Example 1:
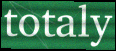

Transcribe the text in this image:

totaly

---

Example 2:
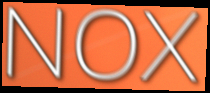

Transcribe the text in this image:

NOX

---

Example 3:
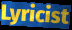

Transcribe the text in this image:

Lyricist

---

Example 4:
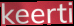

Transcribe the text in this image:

keerti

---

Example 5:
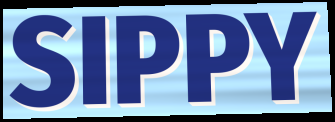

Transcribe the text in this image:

SIPPY